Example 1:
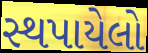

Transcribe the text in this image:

સ્થપાયેલો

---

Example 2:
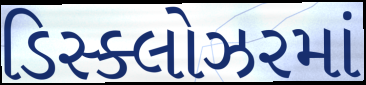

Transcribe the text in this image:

ડિસ્ક્લોઝરમાં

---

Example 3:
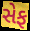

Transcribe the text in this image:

સેફ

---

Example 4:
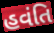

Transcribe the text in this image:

હવંતિ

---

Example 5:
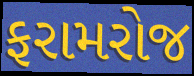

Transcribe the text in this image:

ફરામરોજ